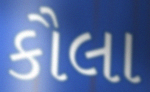
કૌલા